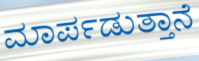
ಮಾರ್ಪಡುತ್ತಾನೆ